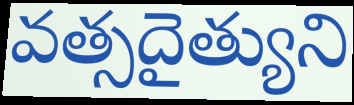
వత్సదైత్యుని